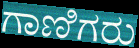
ಗಾಣಿಗರು